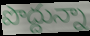
పొద్దున్నా